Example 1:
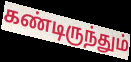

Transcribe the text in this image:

கண்டிருந்தும்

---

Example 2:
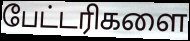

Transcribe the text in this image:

பேட்டரிகளை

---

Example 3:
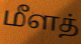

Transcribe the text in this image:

மீளத்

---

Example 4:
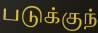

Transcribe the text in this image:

படுக்குந்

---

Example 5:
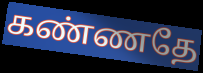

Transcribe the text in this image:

கண்ணதே